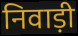
निवाड़ी